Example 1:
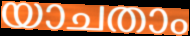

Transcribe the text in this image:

യാചതാം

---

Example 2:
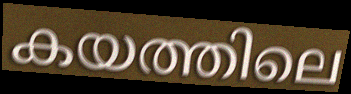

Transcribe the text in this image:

കയത്തിലെ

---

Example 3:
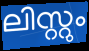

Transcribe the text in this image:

ലിസ്റ്റും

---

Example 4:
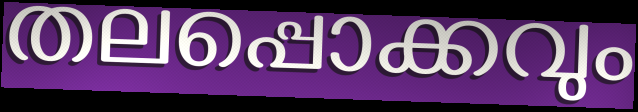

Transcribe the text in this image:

തലപ്പൊക്കവും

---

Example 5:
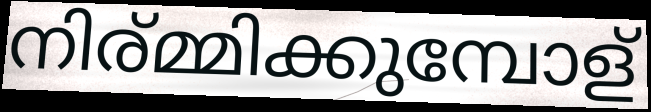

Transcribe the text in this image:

നിര്മ്മിക്കുമ്പോള്